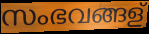
സംഭവങ്ങള്